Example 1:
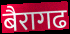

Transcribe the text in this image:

बैरागढ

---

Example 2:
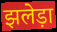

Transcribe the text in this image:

झलेड़ा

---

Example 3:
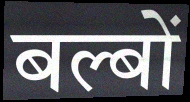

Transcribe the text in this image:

बल्बों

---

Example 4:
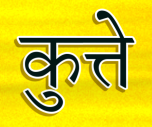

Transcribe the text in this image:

कुत्ते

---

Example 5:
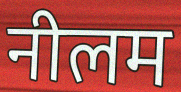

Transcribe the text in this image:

नीलम